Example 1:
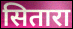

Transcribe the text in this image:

सितारा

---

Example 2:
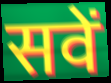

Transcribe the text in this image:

सवें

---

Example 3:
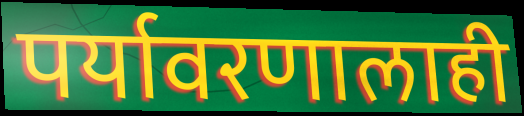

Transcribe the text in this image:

पर्यावरणालाही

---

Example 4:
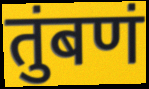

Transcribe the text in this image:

तुंबणं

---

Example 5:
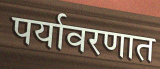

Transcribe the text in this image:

पर्यावरणात